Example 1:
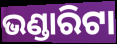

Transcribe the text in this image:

ଭଣ୍ଡାରିଟା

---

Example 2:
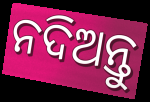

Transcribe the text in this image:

ନଦିଅନ୍ତୁ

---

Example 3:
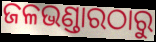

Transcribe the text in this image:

ଜଳଭଣ୍ଡାରଠାରୁ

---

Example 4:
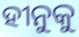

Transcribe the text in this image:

ହୀନୁକୁ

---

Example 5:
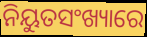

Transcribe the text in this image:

ନିୟୁତସଂଖ୍ୟାରେ